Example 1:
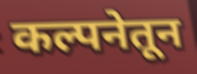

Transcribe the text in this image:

कल्पनेतून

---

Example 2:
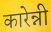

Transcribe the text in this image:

कारेन्नी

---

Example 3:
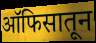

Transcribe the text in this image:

ऑफिसातून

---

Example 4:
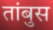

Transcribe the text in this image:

तांबुस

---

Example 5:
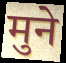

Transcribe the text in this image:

मुने